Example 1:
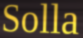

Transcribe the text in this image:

Solla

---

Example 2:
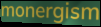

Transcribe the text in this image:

monergism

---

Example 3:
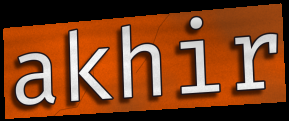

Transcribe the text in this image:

akhir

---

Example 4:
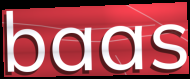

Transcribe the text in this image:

baas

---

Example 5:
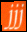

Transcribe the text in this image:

jjj